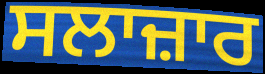
ਸਲਾਜ਼ਾਰ